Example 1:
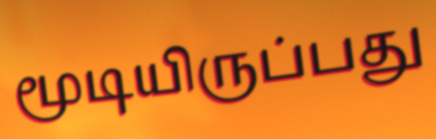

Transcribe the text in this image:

மூடியிருப்பது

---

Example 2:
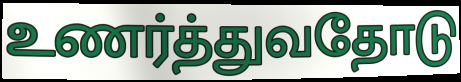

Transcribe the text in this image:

உணர்த்துவதோடு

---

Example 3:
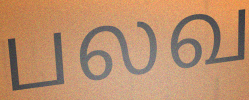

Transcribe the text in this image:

பலவ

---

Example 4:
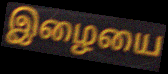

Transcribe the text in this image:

இழையை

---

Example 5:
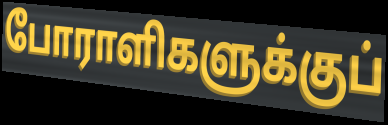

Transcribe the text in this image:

போராளிகளுக்குப்